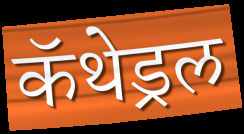
कॅथेड्रल